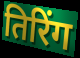
तिरिंग